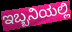
ಇಬ್ಬನಿಯಲ್ಲಿ